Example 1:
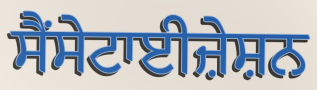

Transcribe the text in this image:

ਸੈਂਸੇਟਾਈਜ਼ੇਸ਼ਨ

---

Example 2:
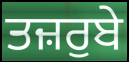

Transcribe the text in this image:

ਤਜ਼ਰੁਬੇ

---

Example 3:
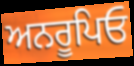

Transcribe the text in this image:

ਅਨਰੂਪਿਓ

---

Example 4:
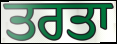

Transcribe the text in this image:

ਤਰਤਾ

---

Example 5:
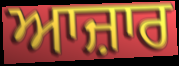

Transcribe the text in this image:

ਆਜ਼ਾਰ